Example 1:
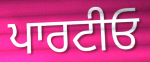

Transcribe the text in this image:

ਪਾਰਟੀਓ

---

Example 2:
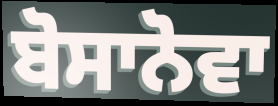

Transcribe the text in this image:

ਬੋਸਾਨੋਵਾ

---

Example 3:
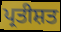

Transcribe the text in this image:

ਪ੍ਰਤੀਸ਼ਤ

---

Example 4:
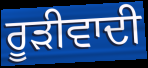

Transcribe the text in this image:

ਰੂੜੀਵਾਦੀ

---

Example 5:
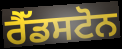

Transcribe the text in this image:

ਰੈੱਡਸਟੋਨ